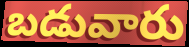
బడువారు